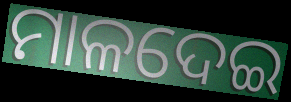
ମାଳଦେଇ